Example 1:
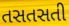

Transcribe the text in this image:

તસતસતી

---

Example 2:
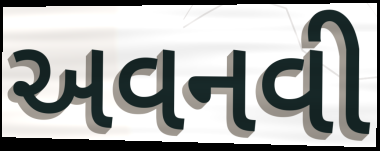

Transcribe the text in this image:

અવનવી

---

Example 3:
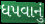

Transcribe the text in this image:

ધપવાનું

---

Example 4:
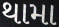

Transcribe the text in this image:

થામા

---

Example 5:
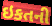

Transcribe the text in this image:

ઇકતની